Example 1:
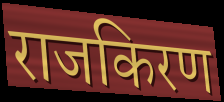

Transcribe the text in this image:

राजकिरण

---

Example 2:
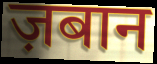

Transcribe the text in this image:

ज़बान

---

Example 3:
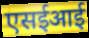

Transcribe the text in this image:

एसईआई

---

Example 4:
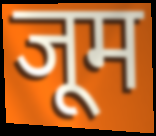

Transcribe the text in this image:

जूम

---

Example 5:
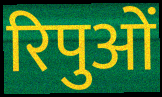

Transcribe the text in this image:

रिपुओं